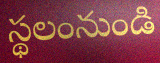
స్థలంనుండి